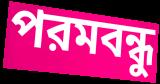
পরমবন্ধু